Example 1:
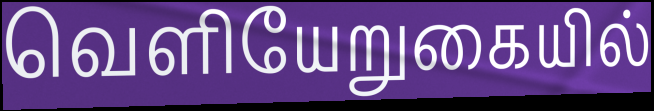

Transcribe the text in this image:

வெளியேறுகையில்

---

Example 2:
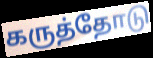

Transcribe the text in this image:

கருத்தோடு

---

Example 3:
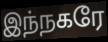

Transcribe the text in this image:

இந்நகரே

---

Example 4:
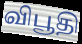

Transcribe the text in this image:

விபூதி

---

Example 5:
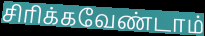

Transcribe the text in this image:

சிரிக்கவேண்டாம்